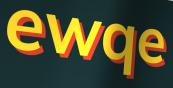
ewqe